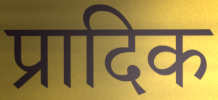
प्रादिक